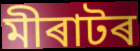
মীৰাটৰ